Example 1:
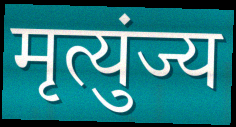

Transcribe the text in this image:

मृत्युंज्य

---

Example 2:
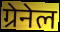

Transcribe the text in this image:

ग्रेनेल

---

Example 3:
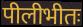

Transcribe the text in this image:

पीलीभीतः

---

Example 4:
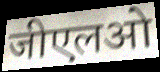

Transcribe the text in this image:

जीएलओ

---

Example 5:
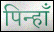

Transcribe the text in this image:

पिन्हाँ